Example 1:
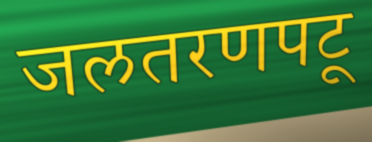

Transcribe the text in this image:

जलतरणपटू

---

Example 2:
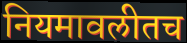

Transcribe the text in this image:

नियमावलीतच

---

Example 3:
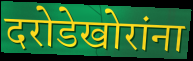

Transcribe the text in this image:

दरोडेखोरांना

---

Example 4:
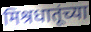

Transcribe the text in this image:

मिश्रधातूंच्या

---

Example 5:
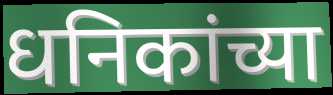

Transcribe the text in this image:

धनिकांच्या